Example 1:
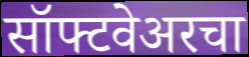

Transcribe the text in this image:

सॉफ्टवेअरचा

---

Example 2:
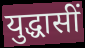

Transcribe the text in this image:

युद्धासीं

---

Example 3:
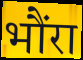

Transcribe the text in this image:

भौंरा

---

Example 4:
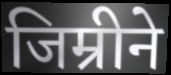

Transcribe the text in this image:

जिम्रीने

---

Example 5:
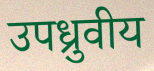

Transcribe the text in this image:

उपध्रुवीय